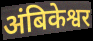
अंबिकेश्वर